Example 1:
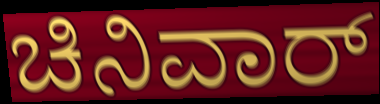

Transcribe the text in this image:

ಚಿನಿವಾರ್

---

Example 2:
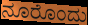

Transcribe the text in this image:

ನೂರೊಂದು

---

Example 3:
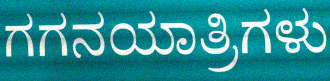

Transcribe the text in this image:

ಗಗನಯಾತ್ರಿಗಳು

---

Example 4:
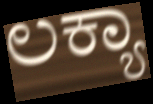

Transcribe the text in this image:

ಲಕ್ಯಾ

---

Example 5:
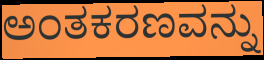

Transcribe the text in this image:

ಅಂತಕರಣವನ್ನು